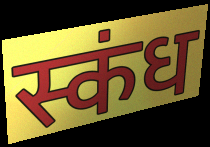
स्कंध